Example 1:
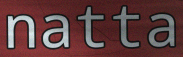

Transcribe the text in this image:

natta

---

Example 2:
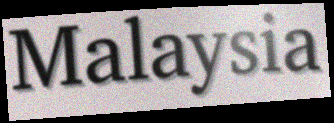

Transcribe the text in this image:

Malaysia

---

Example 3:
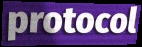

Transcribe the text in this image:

protocol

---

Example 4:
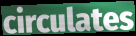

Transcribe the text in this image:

circulates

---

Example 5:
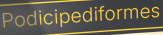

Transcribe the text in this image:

Podicipediformes